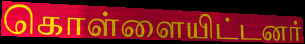
கொள்ளையிட்டனர்